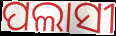
ପଲାସୀ